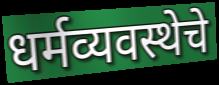
धर्मव्यवस्थेचे